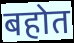
बहोत